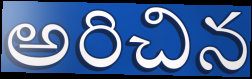
అరిచిన